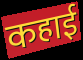
कहाई